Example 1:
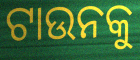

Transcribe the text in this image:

ଟାଉନକୁ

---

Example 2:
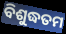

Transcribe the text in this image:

ବିଶୁଦ୍ଧତମ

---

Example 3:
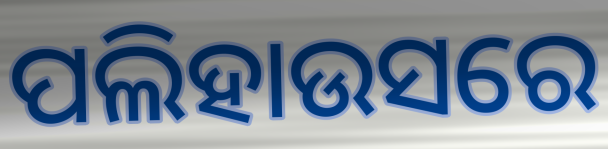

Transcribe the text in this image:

ପଲିହାଉସରେ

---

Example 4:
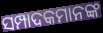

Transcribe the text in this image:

ସମ୍ପାଦକମାନଙ୍କ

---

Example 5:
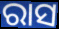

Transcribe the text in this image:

ରାସ